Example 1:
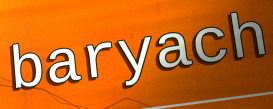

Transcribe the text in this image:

baryach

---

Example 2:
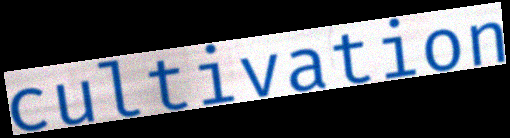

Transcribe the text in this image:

cultivation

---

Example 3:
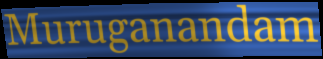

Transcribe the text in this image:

Muruganandam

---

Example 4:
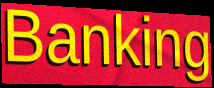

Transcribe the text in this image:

Banking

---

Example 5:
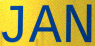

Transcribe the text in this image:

JAN